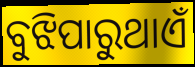
ବୁଝିପାରୁଥାଏଁ